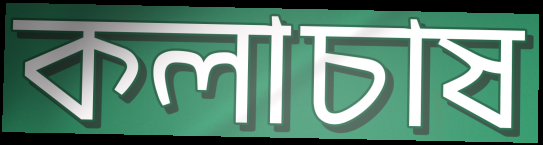
কলাচাষ